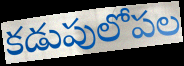
కడుపులోపల